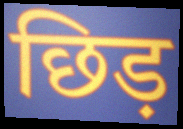
छिड़